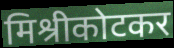
मिश्रीकोटकर